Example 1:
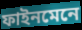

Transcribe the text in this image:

ফাইনমেনে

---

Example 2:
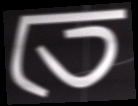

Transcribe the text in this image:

তে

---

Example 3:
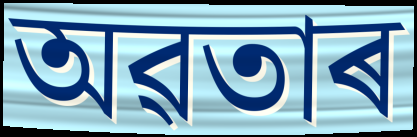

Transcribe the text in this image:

অৱতাৰ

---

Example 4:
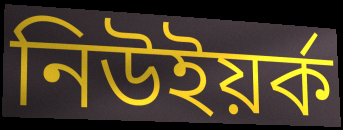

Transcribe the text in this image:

নিউইয়ৰ্ক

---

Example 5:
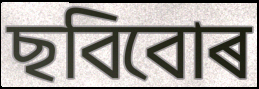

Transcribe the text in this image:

ছবিবোৰ